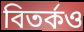
বিতৰ্কও